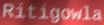
Ritigowla